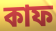
কাফ